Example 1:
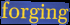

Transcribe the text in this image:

forging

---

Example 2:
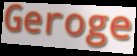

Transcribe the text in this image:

Geroge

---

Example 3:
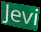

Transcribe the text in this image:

Jevi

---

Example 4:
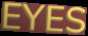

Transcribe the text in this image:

EYES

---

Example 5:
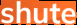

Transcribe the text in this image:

shute